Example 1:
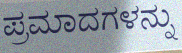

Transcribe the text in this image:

ಪ್ರಮಾದಗಳನ್ನು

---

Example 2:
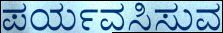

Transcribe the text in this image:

ಪರ್ಯವಸಿಸುವ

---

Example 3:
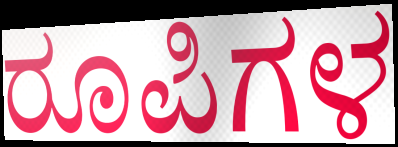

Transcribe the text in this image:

ರೂಪಿಗಳ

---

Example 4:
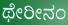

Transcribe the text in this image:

ಥೇರೀನಂ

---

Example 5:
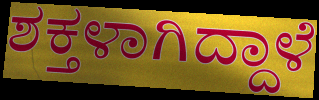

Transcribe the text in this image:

ಶಕ್ತಳಾಗಿದ್ದಾಳೆ